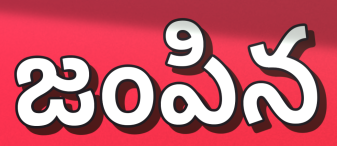
జంపిన